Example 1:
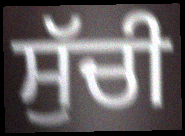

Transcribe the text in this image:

ਸੁੱਚੀ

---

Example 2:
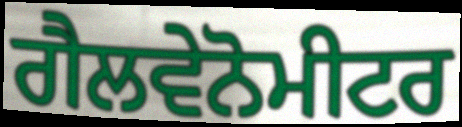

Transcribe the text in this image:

ਗੈਲਵੇਨੋਮੀਟਰ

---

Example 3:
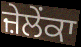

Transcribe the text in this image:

ਜ਼ੇਲੇਂਕਾ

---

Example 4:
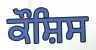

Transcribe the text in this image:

ਕੌਸ਼ਿਸ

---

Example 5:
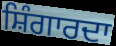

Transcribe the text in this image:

ਸ਼ਿੰਗਾਰਦਾ